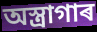
অস্ত্ৰাগাৰ